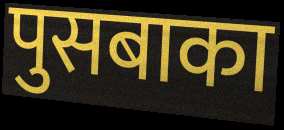
पुसबाका